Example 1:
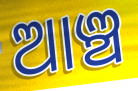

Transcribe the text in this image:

ଆଞ୍ଚ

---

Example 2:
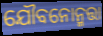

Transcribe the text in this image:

ଯୌବନୋନ୍ମତ୍ତା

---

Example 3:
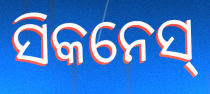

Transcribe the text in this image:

ସିକନେସ୍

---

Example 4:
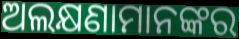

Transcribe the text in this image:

ଅଲକ୍ଷଣାମାନଙ୍କର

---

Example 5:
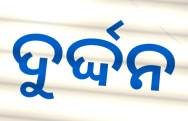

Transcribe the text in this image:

ଦୁର୍ଦ୍ଦନ